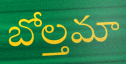
బోల్తమా